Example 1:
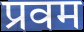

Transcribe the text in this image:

प्रवम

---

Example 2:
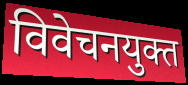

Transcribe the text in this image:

विवेचनयुक्त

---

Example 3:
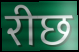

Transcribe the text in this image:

रीछ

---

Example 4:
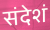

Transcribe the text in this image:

संदेशं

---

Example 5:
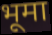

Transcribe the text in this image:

भूमा